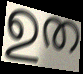
ഉത